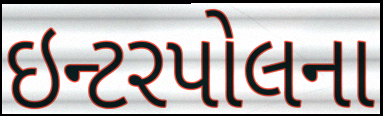
ઇન્ટરપોલના